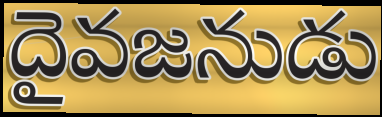
దైవజనుడు